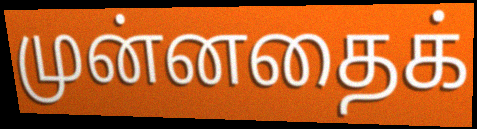
முன்னதைக்